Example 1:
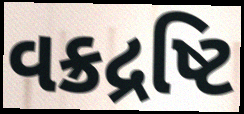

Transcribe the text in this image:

વક્રદ્રષ્ટિ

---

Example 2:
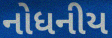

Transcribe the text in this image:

નોધનીય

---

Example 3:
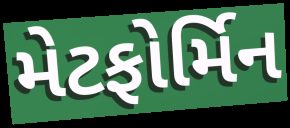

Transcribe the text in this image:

મેટફોર્મિન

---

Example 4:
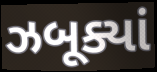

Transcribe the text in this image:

ઝબૂક્યાં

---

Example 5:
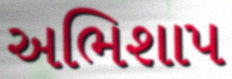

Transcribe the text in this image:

અભિશાપ